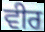
ਵੀਰ